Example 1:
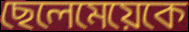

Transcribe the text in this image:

ছেলেমেয়েকে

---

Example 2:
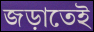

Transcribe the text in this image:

জড়াতেই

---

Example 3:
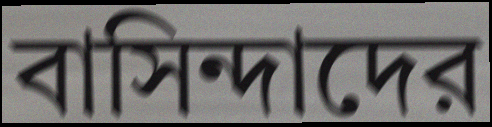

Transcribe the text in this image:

বাসিন্দাদের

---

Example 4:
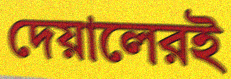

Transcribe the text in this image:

দেয়ালেরই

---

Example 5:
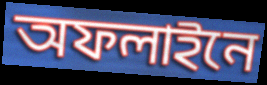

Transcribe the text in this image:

অফলাইনে